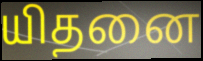
யிதனை